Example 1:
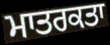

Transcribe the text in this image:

ਮਾਤਰਕਤਾ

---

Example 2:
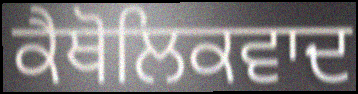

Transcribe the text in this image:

ਕੈਥੋਲਿਕਵਾਦ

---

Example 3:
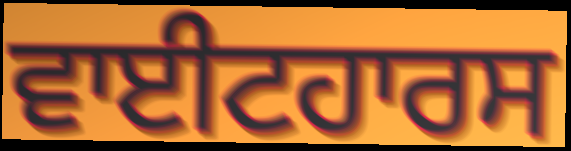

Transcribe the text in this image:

ਵਾਈਟਹਾਰਸ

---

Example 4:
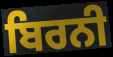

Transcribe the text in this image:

ਬਿਰਨੀ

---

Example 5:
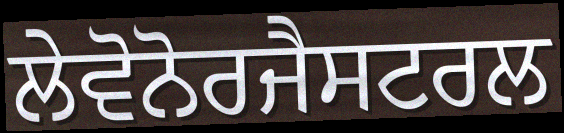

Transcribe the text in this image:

ਲੇਵੋਨੋਰਜੈਸਟਰਲ